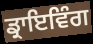
ਡ੍ਰਾਇਵਿੰਗ